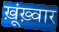
ख़ूंख़्वार